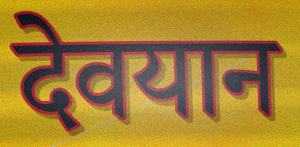
देवयान